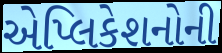
એપ્લિકેશનોની